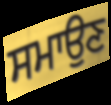
ਸਮਾਉਣ